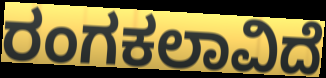
ರಂಗಕಲಾವಿದೆ